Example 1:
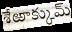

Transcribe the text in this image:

శేఱాక్కుమ్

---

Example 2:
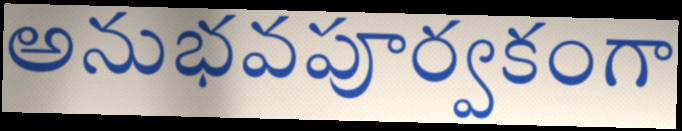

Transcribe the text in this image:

అనుభవపూర్వకంగా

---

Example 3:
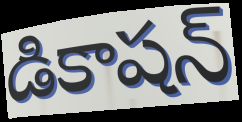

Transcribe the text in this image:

డికాషన్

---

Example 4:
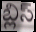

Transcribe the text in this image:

బ్లిస్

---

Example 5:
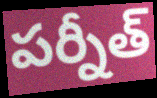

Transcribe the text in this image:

పర్నీత్